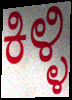
ಕಿಳ್ಳಿ